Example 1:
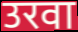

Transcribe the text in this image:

उरवा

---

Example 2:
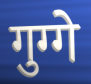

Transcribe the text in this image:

गुग्गे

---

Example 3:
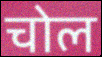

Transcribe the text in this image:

चोल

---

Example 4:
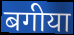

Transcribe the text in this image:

बगीया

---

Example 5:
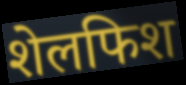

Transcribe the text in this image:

शेलफिश